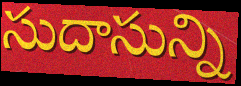
సుదాసున్ని